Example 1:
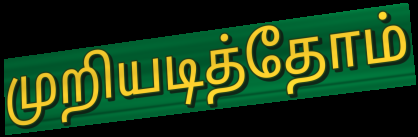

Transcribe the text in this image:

முறியடித்தோம்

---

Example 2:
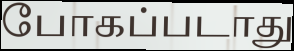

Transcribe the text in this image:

போகப்படாது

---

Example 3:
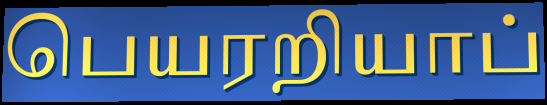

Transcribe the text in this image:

பெயரறியாப்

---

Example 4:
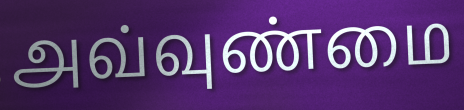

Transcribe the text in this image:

அவ்வுண்மை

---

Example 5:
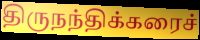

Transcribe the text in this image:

திருநந்திக்கரைச்